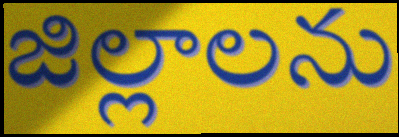
జిల్లాలను